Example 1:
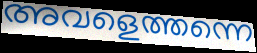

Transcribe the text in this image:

അവളെത്തന്നെ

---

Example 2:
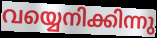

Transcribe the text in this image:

വയ്യെനിക്കിന്നു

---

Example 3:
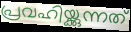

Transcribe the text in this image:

പ്രവഹിയ്ക്കുന്നത്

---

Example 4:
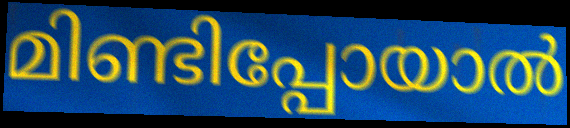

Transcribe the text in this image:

മിണ്ടിപ്പോയാൽ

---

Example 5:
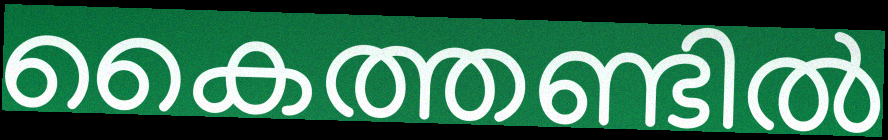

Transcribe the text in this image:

കൈത്തണ്ടിൽ